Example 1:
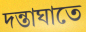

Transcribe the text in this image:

দন্তাঘাতে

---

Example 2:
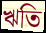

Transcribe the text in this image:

ঋতি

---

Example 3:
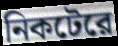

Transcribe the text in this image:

নিকটেরে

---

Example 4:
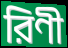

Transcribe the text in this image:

রিণী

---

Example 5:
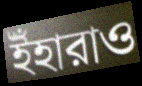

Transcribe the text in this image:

ইঁহারাও